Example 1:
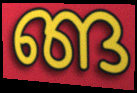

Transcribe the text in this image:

ങ്ങ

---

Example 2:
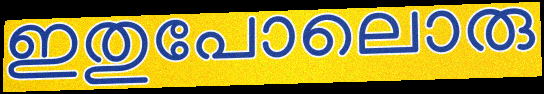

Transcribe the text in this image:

ഇതുപോലൊരു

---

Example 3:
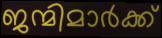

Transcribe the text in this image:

ജന്മിമാർക്ക്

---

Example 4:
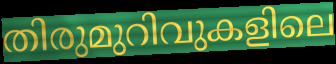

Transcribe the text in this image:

തിരുമുറിവുകളിലെ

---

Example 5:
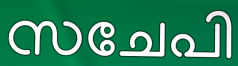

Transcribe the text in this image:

സചേപി